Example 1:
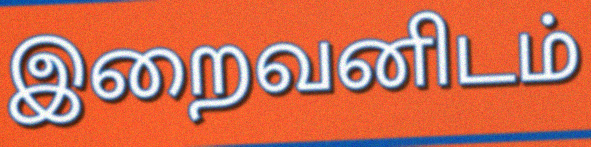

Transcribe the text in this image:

இறைவனிடம்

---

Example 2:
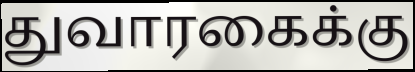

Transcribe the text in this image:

துவாரகைக்கு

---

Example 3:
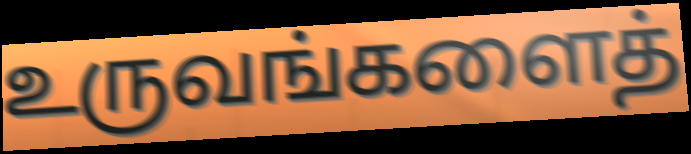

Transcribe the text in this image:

உருவங்களைத்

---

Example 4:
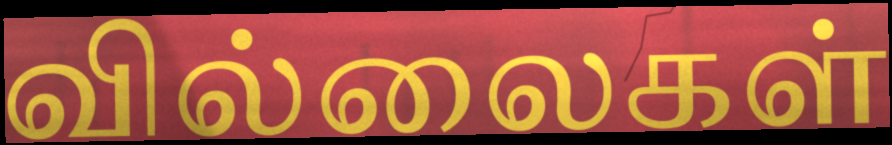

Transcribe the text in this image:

வில்லைகள்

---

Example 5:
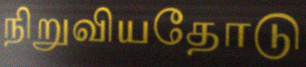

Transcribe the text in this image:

நிறுவியதோடு